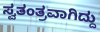
ಸ್ವತಂತ್ರವಾಗಿದ್ದು